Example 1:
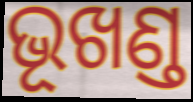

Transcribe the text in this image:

ଭୂଖଣ୍ଡ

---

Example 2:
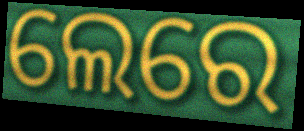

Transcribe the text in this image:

ଲେରେ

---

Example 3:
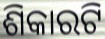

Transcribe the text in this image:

ଶିକାରଟି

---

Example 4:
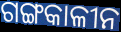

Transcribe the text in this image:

ଗଙ୍ଗକାଳୀନ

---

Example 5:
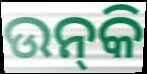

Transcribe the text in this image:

ଉନ୍‌କି